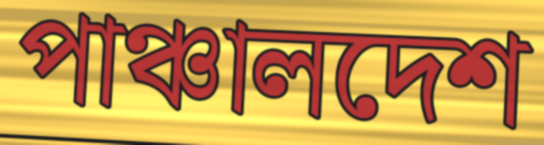
পাঞ্চালদেশ